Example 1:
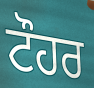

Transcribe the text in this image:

ਟੌਹਰ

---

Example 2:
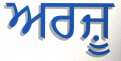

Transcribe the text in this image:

ਅਰਜ਼ੂ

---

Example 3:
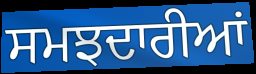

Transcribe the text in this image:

ਸਮਝਦਾਰੀਆਂ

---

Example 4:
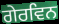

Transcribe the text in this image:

ਗੇਰਵਿਨ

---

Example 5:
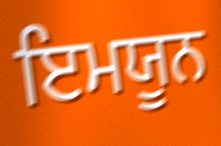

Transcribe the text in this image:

ਇਮਯੂਨ